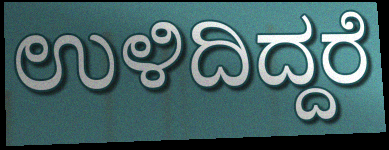
ಉಳಿದಿದ್ದರೆ